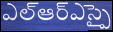
ఎల్ఆర్ఎస్పై